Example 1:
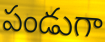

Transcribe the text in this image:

పండుగా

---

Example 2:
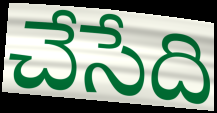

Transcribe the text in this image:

చేసేది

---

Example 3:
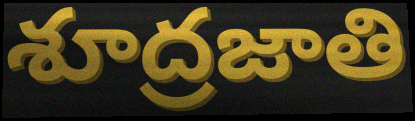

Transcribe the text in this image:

శూద్రజాతి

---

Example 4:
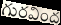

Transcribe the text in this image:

గురవింద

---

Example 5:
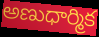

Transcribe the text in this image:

అణుధార్మిక